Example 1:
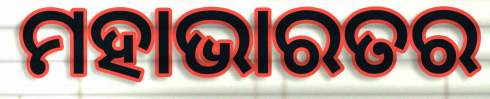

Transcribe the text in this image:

ମହାଭାରତର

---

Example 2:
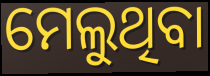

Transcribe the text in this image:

ମେଲୁଥିବା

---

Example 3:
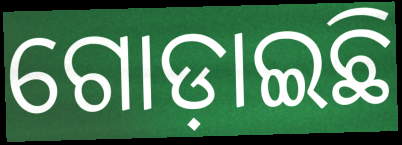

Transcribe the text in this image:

ଗୋଡ଼ାଇଛି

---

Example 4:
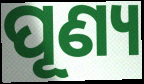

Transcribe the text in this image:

ପୂଣ୍ୟ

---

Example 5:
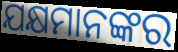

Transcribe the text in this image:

ଯକ୍ଷମାନଙ୍କର